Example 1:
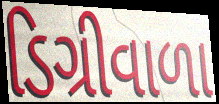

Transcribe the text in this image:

ડિગ્રીવાળા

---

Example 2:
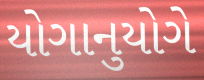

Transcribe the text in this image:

યોગાનુયોગે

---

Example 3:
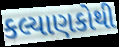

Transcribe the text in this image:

કલ્યાણકોથી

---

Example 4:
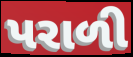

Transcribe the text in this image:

પરાળી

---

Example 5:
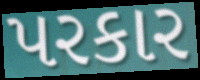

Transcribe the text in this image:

પરકાર